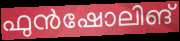
ഫുൻഷോലിങ്